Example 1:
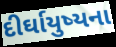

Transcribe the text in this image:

દીર્ઘાયુષ્યના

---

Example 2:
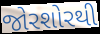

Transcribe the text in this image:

જોરશોરથી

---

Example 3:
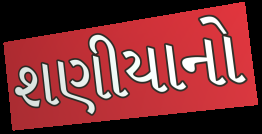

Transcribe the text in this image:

શણીયાનો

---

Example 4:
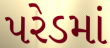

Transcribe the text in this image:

પરેડમાં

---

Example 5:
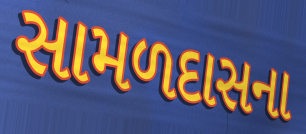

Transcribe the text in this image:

સામળદાસના